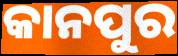
କାନପୁର